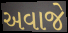
અવાજે